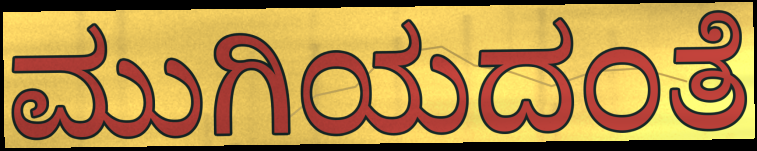
ಮುಗಿಯದಂತೆ